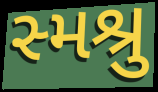
સ્મશ્રુ